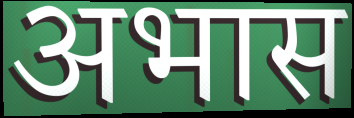
अभास